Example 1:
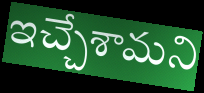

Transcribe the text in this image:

ఇచ్చేశామని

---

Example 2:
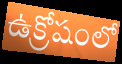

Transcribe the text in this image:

ఉక్రోషంలో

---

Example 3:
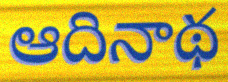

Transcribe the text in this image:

ఆదినాథ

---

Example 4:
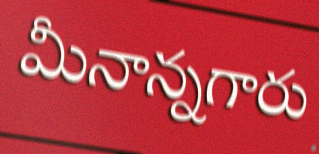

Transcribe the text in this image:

మీనాన్నగారు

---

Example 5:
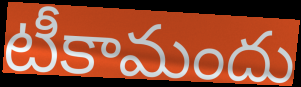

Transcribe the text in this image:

టీకామందు